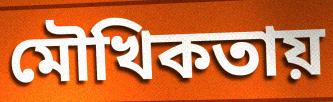
মৌখিকতায়